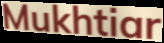
Mukhtiar